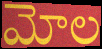
మోల